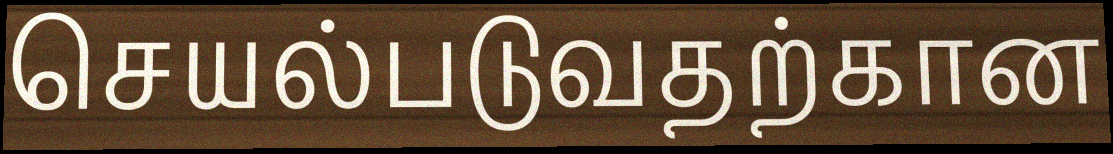
செயல்படுவதற்கான